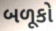
બળૂકો